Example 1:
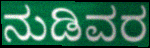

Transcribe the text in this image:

ನುಡಿವರ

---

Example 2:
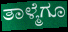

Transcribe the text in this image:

ತಾಳ್ಮೆಗೂ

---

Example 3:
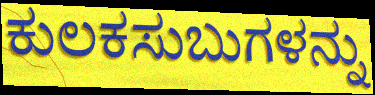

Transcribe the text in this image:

ಕುಲಕಸುಬುಗಳನ್ನು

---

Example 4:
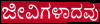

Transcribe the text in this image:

ಜೀವಿಗಳಾದವು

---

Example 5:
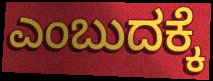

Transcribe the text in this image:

ಎಂಬುದಕ್ಕೆ